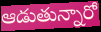
ఆడుతున్నారో